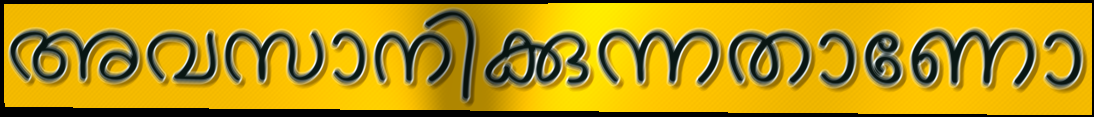
അവസാനിക്കുന്നതാണോ